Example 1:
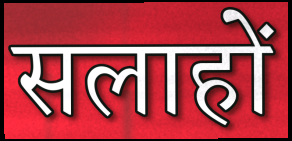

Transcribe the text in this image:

सलाहों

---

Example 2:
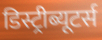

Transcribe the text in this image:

डिस्ट्रीब्यूटर्स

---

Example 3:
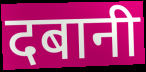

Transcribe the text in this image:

दबानी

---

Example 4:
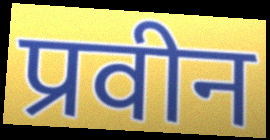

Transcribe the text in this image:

प्रवीन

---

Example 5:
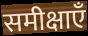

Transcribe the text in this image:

समीक्षाएँ